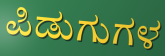
ಪಿಡುಗುಗಳ